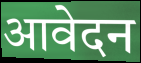
आवेदन